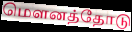
மௌனத்தோடு